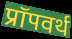
प्रॉपवर्थ